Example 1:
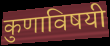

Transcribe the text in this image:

कुणाविषयी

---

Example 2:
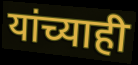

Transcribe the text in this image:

यांच्याही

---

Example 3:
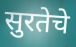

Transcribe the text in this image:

सुरतेचे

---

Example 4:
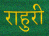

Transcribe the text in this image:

राहुरी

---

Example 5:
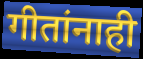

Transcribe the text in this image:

गीतांनाही